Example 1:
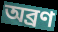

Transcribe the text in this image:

অব্রণ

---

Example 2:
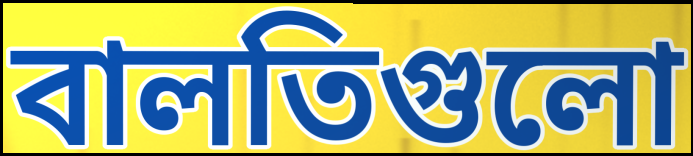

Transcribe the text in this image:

বালতিগুলো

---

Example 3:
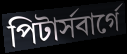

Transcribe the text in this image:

পিটার্সবার্গে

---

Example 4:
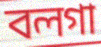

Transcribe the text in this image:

বলগা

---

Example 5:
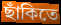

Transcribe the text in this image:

ছাঁকিতে